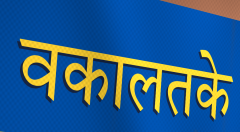
वकालतके